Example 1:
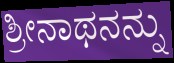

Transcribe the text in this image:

ಶ್ರೀನಾಥನನ್ನು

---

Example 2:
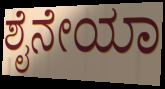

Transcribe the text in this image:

ಶೈನೇಯಾ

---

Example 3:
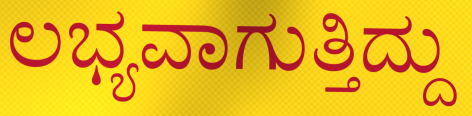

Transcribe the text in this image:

ಲಭ್ಯವಾಗುತ್ತಿದ್ದು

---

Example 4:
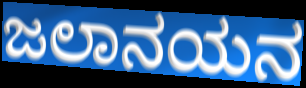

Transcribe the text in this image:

ಜಲಾನಯನ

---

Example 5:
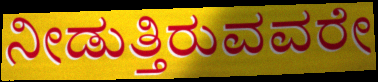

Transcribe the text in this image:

ನೀಡುತ್ತಿರುವವರೇ